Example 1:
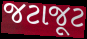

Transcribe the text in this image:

જટાજૂટ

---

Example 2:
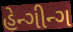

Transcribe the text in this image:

હેન્ગીન્ગ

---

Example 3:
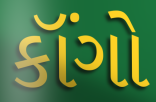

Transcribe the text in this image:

કૉંગો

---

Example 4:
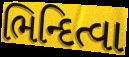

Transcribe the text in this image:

ભિન્દિત્વા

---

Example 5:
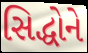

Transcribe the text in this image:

સિદ્ધોને